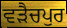
ਵੜੈਚਪੁਰ